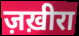
ज़ख़ीरा